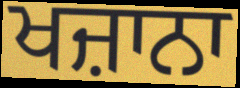
ਖਜ਼ਾਨਾ